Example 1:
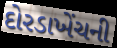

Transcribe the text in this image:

દોરડાખેંચની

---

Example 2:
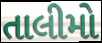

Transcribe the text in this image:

તાલીમો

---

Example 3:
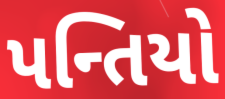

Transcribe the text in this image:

પન્તિયો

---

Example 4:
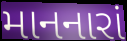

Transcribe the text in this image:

માનનારાં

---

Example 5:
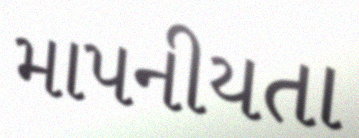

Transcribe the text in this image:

માપનીયતા